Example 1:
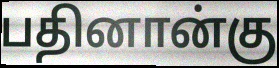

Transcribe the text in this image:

பதினான்கு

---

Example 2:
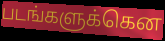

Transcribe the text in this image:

படங்களுக்கென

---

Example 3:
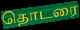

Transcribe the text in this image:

தொடரை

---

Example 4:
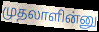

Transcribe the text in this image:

முதலாளின்னு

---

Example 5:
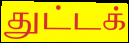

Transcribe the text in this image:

துட்டக்